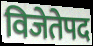
विजेतेपद